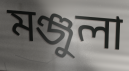
মঞ্জুলা